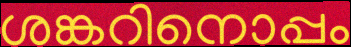
ശങ്കറിനൊപ്പം